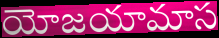
యోజయామాస